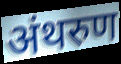
अंथरुण